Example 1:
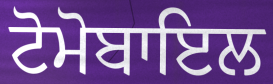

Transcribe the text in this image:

ਟੋਮੋਬਾਇਲ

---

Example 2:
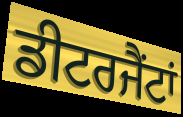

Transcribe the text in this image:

ਡੀਟਰਜੈਂਟਾਂ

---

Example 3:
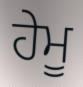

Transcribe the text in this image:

ਹੇਮੂ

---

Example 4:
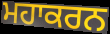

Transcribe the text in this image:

ਮਹਾਕਰਨ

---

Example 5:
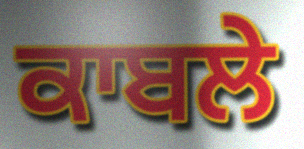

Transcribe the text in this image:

ਕਾਬਲੇ